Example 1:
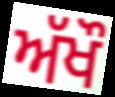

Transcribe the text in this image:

ਅੱਖੌ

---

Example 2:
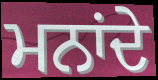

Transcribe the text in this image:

ਮਨਾਂਦੇ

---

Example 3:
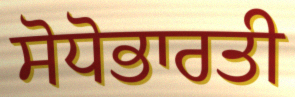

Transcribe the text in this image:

ਸੋਧੋਭਾਰਤੀ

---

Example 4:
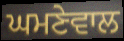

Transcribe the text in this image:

ਘਮਣੇਵਾਲ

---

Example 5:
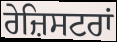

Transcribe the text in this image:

ਰੇਜ਼ਿਸਟਰਾਂ